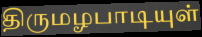
திருமழபாடியுள்